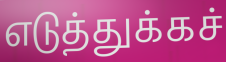
எடுத்துக்கச்